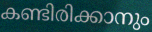
കണ്ടിരിക്കാനും